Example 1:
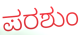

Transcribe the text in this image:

ಪರಶುಂ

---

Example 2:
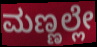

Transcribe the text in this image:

ಮಣ್ಣಲ್ಲೇ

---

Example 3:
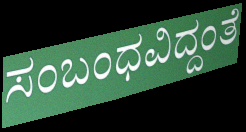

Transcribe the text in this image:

ಸಂಬಂಧವಿದ್ದಂತೆ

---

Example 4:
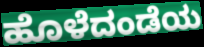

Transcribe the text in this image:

ಹೊಳೆದಂಡೆಯ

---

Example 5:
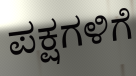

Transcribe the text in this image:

ಪಕ್ಷಗಳಿಗೆ